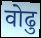
वोढु